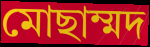
মোছাম্মদ